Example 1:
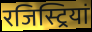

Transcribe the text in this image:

रजिस्ट्रियां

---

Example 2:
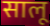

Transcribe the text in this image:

सालू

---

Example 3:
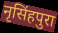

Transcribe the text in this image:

नृसिंहपुरा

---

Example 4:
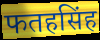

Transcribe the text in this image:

फतहसिंह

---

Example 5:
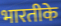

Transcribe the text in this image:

भारतीके